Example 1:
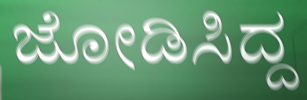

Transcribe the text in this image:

ಜೋಡಿಸಿದ್ದ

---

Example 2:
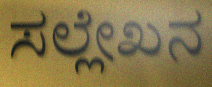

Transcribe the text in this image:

ಸಲ್ಲೇಖನ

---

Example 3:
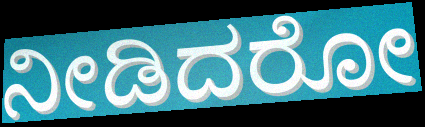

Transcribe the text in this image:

ನೀಡಿದರೋ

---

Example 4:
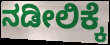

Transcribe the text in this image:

ನಡೀಲಿಕ್ಕೆ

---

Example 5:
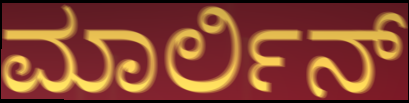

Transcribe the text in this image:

ಮಾರ್ಲಿನ್